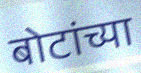
बोटांच्या